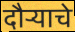
दौर्‍याचे